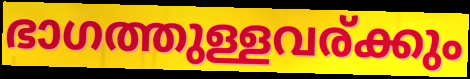
ഭാഗത്തുള്ളവര്ക്കും